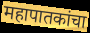
महापातकांचा